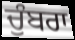
ਚੁੰਬਰਾ